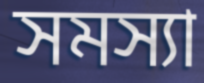
সমস্যা